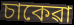
চাকেৱা